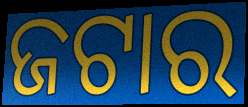
ଜଟାର